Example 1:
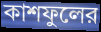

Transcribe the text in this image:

কাশফুলের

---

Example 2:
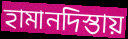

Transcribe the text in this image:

হামানদিস্তায়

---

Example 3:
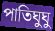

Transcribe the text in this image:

পাতিঘুঘু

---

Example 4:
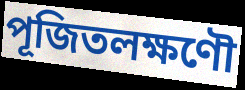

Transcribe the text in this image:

পূজিতলক্ষণৌ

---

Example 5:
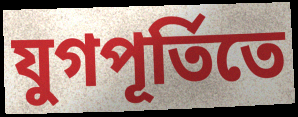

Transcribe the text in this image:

যুগপূর্তিতে